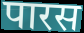
पारस